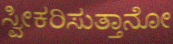
ಸ್ವೀಕರಿಸುತ್ತಾನೋ